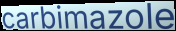
carbimazole